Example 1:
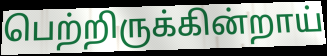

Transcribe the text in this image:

பெற்றிருக்கின்றாய்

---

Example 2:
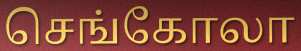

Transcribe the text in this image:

செங்கோலா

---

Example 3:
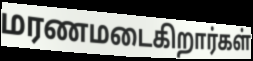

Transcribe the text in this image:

மரணமடைகிறார்கள்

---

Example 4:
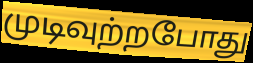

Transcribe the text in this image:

முடிவுற்றபோது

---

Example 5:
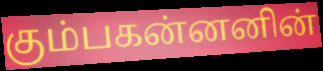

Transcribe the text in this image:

கும்பகன்னனின்